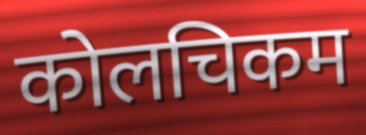
कोलचिकम